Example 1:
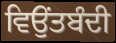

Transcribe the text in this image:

ਵਿਉਂਤਬੰਦੀ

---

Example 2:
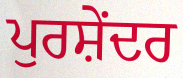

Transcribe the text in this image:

ਪੁਰਸ਼ੇਂਦਰ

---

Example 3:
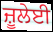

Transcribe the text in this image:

ਜ਼ੂਲੇਈ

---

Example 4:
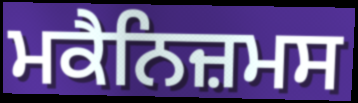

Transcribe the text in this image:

ਮਕੈਨਿਜ਼ਮਸ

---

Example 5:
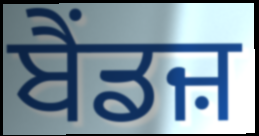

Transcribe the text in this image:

ਬੈਂਡਜ਼